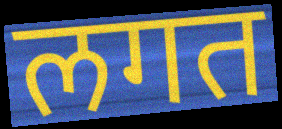
लगत